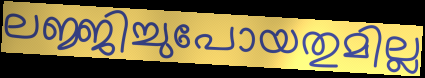
ലജ്ജിച്ചുപോയതുമില്ല